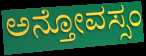
ಅನ್ತೋವಸ್ಸಂ